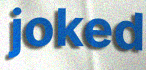
joked